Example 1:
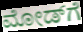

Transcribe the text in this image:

ಮೋಡ್‌ಗೆ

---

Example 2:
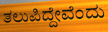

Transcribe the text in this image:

ತಲುಪಿದ್ದೇವೆಂದು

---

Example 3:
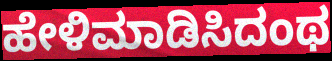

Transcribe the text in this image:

ಹೇಳಿಮಾಡಿಸಿದಂಥ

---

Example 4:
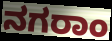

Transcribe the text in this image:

ನಗರಾಂ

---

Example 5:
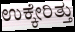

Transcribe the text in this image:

ಉಕ್ಕೇರಿತ್ತು